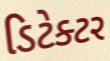
ડિટેક્ટર